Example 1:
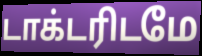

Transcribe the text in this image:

டாக்டரிடமே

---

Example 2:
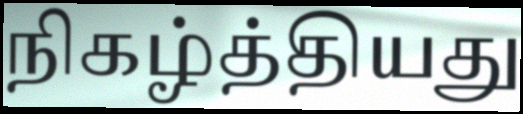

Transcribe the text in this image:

நிகழ்த்தியது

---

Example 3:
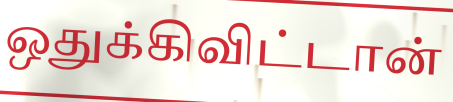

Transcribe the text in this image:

ஒதுக்கிவிட்டான்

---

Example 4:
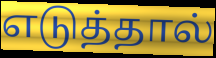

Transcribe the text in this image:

எடுத்தால்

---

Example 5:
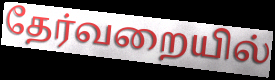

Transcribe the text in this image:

தேர்வறையில்